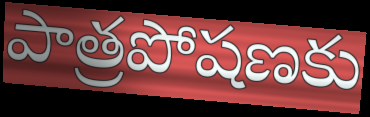
పాత్రపోషణకు